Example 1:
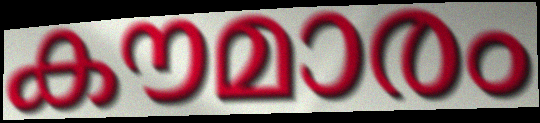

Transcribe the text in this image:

കൗമാരം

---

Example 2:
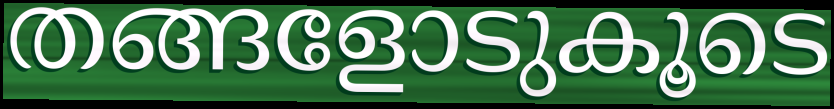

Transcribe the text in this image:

തങ്ങളോടുകൂടെ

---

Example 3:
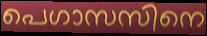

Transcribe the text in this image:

പെഗാസസിനെ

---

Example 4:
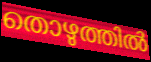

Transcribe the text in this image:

തൊഴുത്തിൽ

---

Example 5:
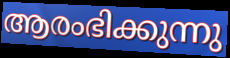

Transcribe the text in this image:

ആരംഭിക്കുന്നു